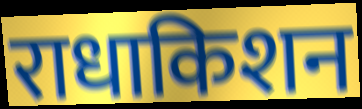
राधाकिशन